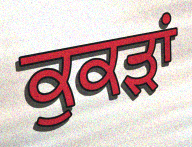
ਕੁਕੜਾਂ